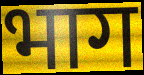
भाग